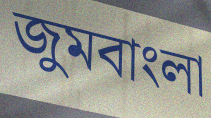
জুমবাংলা